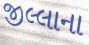
જીલ્લાના